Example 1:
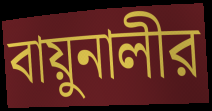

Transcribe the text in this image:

বায়ুনালীর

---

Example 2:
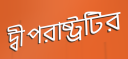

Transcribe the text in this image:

দ্বীপরাষ্ট্রটির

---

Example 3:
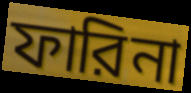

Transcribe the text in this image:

ফারিনা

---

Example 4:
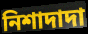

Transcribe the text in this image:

নিশাদাদা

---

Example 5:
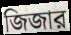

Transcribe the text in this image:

জিজার